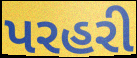
પરહરી